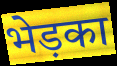
भेड़का